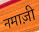
नमाज़ी